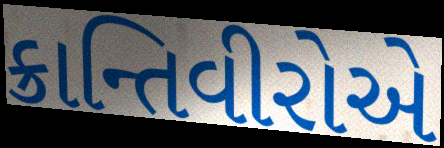
ક્રાન્તિવીરોએ